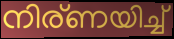
നിര്ണയിച്ച്